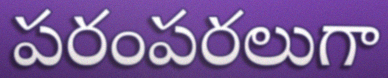
పరంపరలుగా